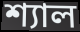
শ্যাল